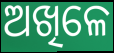
ଅଖିଳେ